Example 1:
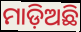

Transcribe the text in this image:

ମାଡ଼ିଅଛି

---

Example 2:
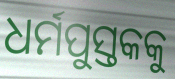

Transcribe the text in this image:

ଧର୍ମପୁସ୍ତକକୁ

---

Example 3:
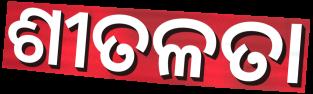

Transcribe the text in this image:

ଶୀତଳତା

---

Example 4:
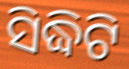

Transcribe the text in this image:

ସିଦ୍ଧିଟି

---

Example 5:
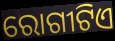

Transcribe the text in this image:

ରୋଗୀଟିଏ